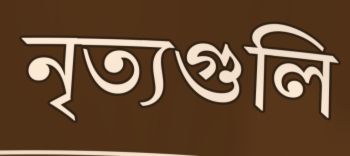
নৃত্যগুলি